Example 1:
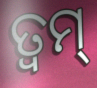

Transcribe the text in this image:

ତ୍ୱମ୍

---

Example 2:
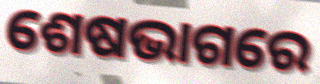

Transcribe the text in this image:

ଶେଷଭାଗରେ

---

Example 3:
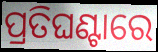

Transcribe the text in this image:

ପ୍ରତିଘଣ୍ଟାରେ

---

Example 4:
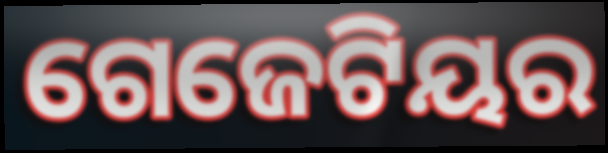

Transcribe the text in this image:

ଗେଜେଟିୟର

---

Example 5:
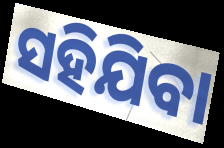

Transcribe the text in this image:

ସହିଯିବା